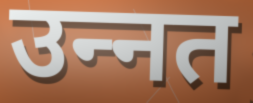
उन्‍नत